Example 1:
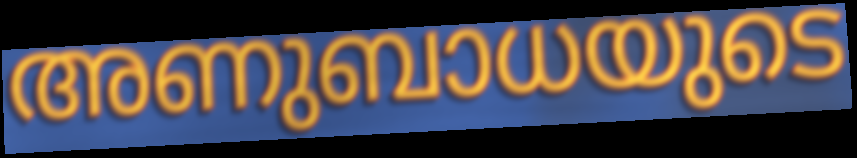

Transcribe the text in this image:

അണുബാധയുടെ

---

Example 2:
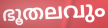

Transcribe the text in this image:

ഭൂതലവും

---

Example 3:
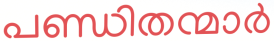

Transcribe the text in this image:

പണ്ഡിതന്മാർ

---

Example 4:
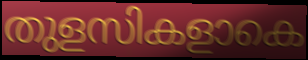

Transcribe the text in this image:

തുളസികളാകെ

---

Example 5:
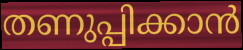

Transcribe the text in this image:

തണുപ്പിക്കാൻ